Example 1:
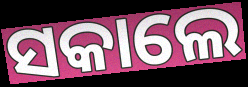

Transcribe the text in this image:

ସକାଲେ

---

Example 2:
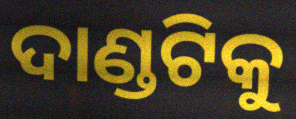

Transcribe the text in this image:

ଦାଣ୍ଡଟିକୁ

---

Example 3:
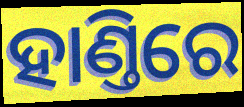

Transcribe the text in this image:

ହାଣ୍ତିରେ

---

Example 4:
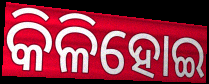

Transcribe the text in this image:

କିଳିହୋଇ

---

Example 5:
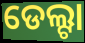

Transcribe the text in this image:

ଡେଲ୍ଟା